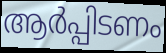
ആർപ്പിടണം